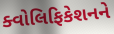
ક્વોલિફિકેશનને